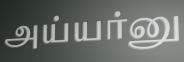
அய்யர்னு